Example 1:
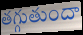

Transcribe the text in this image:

తగ్గుతుందా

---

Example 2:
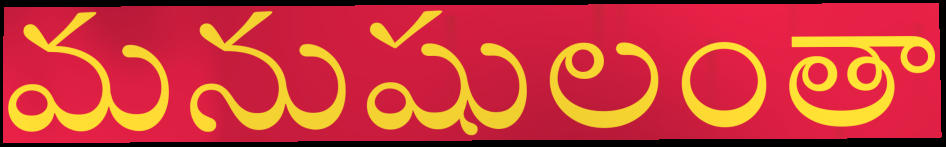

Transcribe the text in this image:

మనుషులంతా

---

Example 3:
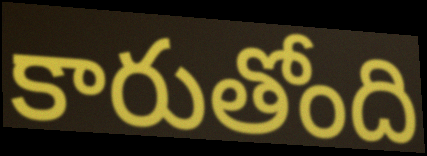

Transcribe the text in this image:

కారుతోంది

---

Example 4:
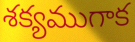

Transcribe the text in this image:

శక్యముగాక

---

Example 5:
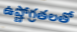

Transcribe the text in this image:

ఉష్ణోగ్రతలతో